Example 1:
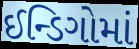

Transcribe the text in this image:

ઈન્ડિગોમાં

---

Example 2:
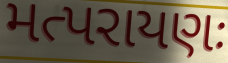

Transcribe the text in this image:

મત્પરાયણઃ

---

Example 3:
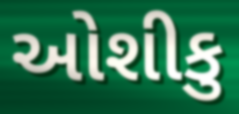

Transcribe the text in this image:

ઓશીકુ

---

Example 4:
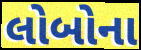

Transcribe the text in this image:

લોબોના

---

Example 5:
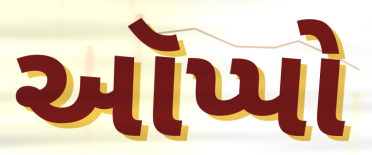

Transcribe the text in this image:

ઑપ્પો